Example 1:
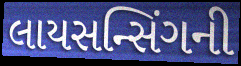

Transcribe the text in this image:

લાયસન્સિંગની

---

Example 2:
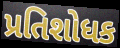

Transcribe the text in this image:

પ્રતિશોધક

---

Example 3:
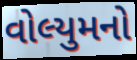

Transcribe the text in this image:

વોલ્યુમનો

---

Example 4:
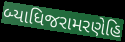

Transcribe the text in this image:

બ્યાધિજરામરણેહિ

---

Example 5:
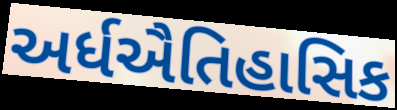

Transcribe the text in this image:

અર્ધઐતિહાસિક